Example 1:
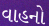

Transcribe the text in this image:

વાહનો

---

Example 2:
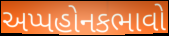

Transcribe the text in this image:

અપ્પહોનકભાવો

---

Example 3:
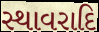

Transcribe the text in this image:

સ્થાવરાદિ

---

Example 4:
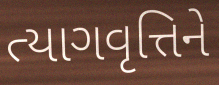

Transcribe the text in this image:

ત્યાગવૃત્તિને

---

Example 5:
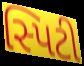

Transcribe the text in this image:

સ્પિટી